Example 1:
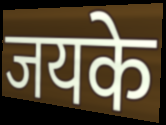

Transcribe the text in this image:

जयके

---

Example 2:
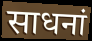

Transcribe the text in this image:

साधनां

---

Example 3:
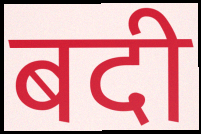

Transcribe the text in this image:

बदी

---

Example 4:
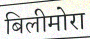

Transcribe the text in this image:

बिलीमोरा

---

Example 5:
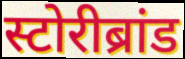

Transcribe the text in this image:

स्टोरीब्रांड